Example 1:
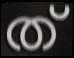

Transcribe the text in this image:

ത്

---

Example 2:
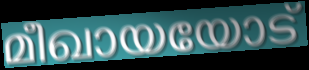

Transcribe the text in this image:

മീഖായയോട്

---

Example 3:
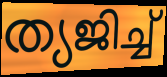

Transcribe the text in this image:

ത്യജിച്ച്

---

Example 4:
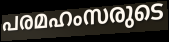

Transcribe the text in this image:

പരമഹംസരുടെ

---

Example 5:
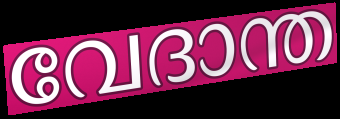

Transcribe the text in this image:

വേദാന്ത